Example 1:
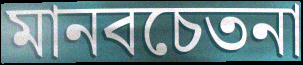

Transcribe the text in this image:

মানবচেতনা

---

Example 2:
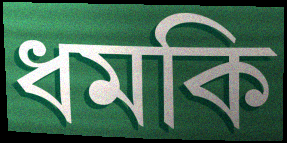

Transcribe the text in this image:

ধমকি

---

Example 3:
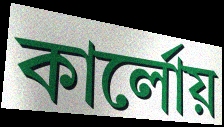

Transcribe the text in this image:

কার্লোয়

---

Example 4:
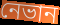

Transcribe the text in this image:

নেভান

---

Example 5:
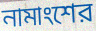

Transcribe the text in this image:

নামাংশের